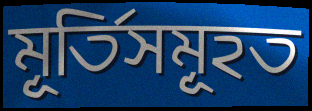
মূৰ্তিসমূহত